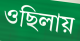
ওছিলায়